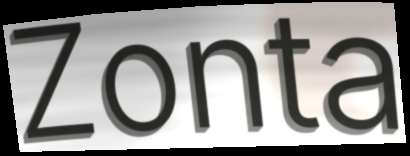
Zonta